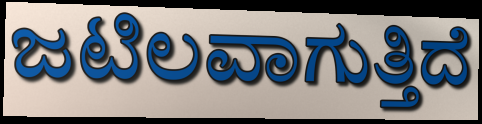
ಜಟಿಲವಾಗುತ್ತಿದೆ